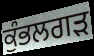
ਕੁੰਭਲਗੜ